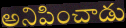
అనిపించాడు